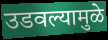
उडवल्यामुळे